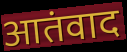
आतंवाद